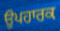
ਉਪਹਾਰਕ